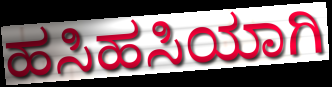
ಹಸಿಹಸಿಯಾಗಿ